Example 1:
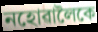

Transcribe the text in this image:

নহোৱালৈকে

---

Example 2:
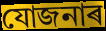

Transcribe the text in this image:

যোজনাৰ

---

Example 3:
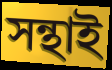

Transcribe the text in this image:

সন্থাই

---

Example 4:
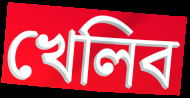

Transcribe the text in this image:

খেলিব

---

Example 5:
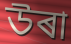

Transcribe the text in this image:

উৰা